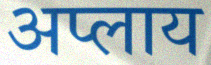
अप्लाय